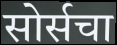
सोर्सचा